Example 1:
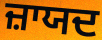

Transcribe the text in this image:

ਜ਼ਾਯਦ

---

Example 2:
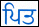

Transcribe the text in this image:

ਪਿਤ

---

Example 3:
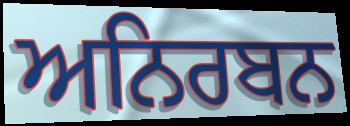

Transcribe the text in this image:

ਅਨਿਰਬਨ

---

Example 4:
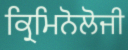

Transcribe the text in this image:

ਕ੍ਰਿਮਿਨੋਲੋਜੀ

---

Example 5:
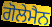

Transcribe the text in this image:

ਗੋਲੇਮੈਨ